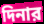
দিনার